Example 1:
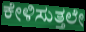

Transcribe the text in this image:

ಕೇಳಿಸುತ್ತಲೇ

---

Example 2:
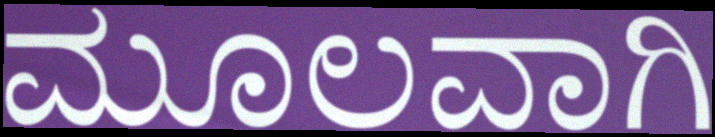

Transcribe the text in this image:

ಮೂಲವಾಗಿ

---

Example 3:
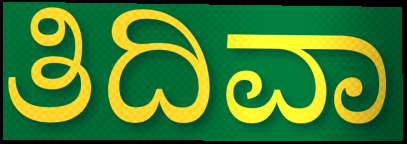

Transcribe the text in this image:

ತಿದಿವಾ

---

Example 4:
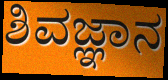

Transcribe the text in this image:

ಶಿವಜ್ಞಾನ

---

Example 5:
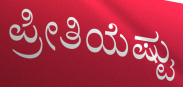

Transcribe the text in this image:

ಪ್ರೀತಿಯೆಷ್ಟು